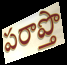
పరాప్తొ